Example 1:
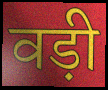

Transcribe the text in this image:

वड़ी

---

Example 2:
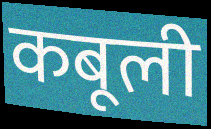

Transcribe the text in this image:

कबूली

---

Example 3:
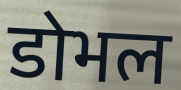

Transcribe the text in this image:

डोभल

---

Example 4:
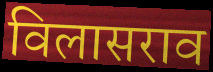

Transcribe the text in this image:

विलासराव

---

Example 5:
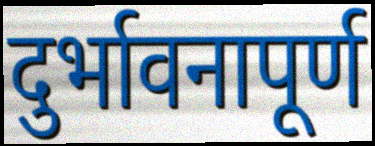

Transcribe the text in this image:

दुर्भावनापूर्ण